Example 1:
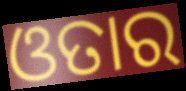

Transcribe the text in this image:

ଓତାର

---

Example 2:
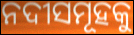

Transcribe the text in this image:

ନଦୀସମୂହକୁ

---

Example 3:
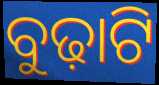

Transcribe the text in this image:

ବୁଢ଼ାଟି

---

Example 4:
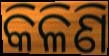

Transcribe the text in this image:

କିଳିଣି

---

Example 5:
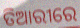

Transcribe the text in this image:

ତିଆରୀରେ